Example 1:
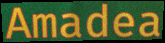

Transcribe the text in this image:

Amadea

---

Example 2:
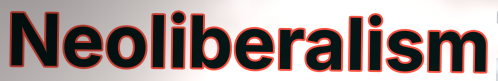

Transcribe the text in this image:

Neoliberalism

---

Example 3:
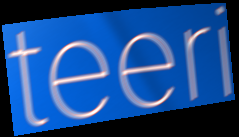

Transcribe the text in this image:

teeri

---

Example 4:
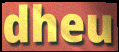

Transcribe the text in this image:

dheu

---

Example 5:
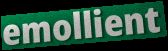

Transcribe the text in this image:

emollient